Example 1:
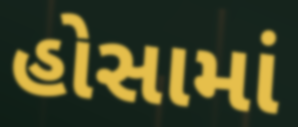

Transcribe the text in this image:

હોસામાં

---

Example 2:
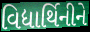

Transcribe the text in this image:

વિદ્યાર્થિનીને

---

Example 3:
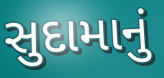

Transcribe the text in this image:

સુદામાનું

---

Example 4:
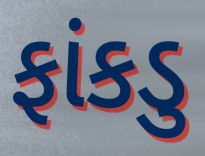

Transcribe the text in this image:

ફાંકડુ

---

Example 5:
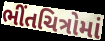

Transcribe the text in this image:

ભીંતચિત્રોમાં